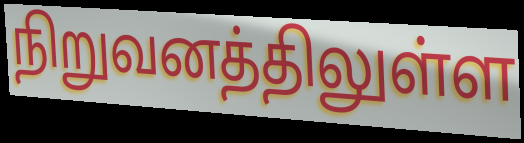
நிறுவனத்திலுள்ள